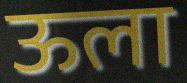
ऊला